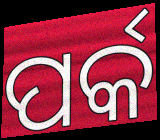
ପର୍କ